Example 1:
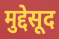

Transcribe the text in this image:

मुद्देसूद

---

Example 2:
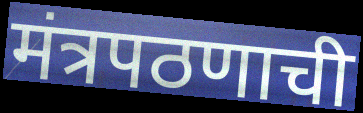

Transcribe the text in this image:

मंत्रपठणाची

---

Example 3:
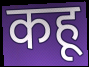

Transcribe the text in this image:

कहू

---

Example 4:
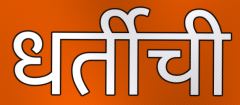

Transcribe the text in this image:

धर्तीची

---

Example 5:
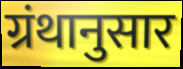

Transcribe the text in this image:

ग्रंथानुसार